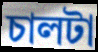
চালটা